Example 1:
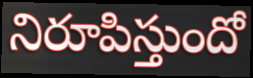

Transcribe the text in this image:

నిరూపిస్తుందో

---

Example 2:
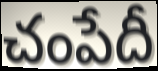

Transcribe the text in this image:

చంపేదీ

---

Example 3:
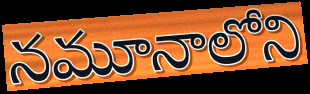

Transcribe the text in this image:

నమూనాలోని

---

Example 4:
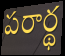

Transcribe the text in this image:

పరార్థ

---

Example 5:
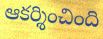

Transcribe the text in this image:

ఆకర్శించింది